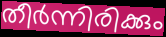
തീർന്നിരിക്കും